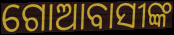
ଗୋଆବାସୀଙ୍କ